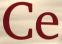
Ce